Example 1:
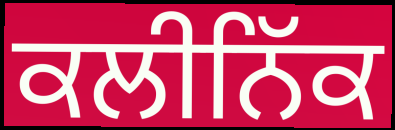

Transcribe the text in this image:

ਕਲੀਨਿੱਕ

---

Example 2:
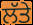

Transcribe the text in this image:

ਲੱਤੇ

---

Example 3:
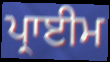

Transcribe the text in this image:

ਪ੍ਰਾਈਮ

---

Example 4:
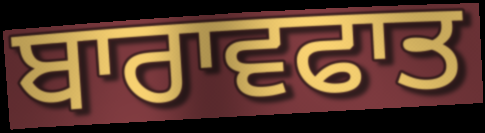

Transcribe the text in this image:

ਬਾਰਾਵਫਾਤ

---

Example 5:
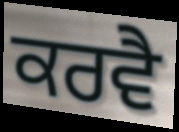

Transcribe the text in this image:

ਕਰਵੈ